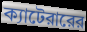
ক্যাটেরারের